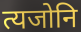
त्यजोनि